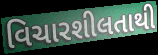
વિચારશીલતાથી